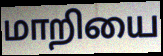
மாறியை